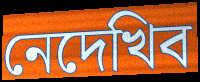
নেদেখিব